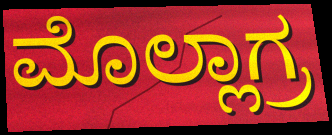
ಮೊಲ್ಲಾಗ್ರ